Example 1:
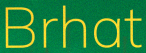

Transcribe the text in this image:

Brhat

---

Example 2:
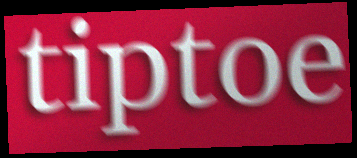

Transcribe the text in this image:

tiptoe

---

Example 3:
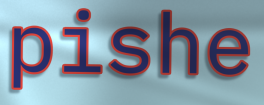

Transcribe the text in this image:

pishe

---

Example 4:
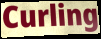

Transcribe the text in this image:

Curling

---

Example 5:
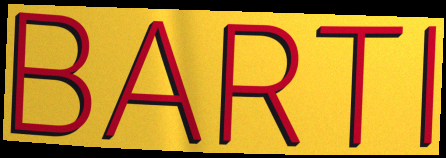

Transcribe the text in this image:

BARTI